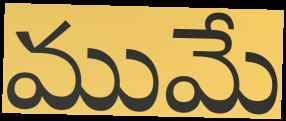
ముమే